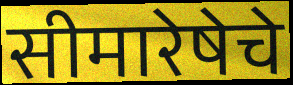
सीमारेषेचे